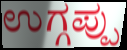
ಉಗ್ಗಪ್ಪು